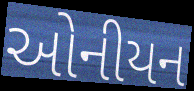
ઓનીયન